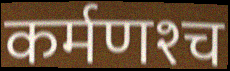
कर्मणश्च